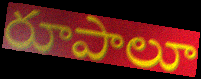
రూపాలూ